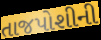
તાજપોશીની